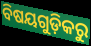
ବିଷୟଗୁଡ଼ିକରୁ